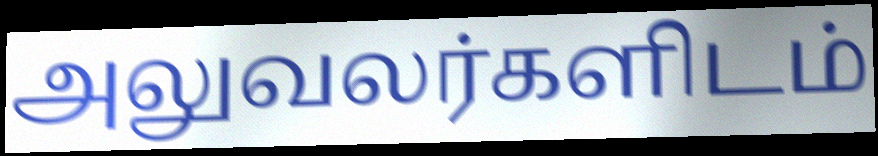
அலுவலர்களிடம்